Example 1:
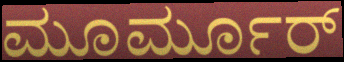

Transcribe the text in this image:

ಮೂರ್ಮೂರ್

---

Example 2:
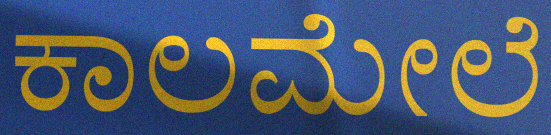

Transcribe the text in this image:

ಕಾಲಮೇಲೆ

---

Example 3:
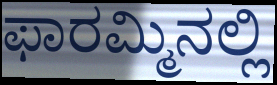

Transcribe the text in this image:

ಫಾರಮ್ಮಿನಲ್ಲಿ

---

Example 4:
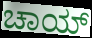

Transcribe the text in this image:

ಚಾಯ್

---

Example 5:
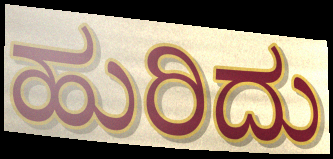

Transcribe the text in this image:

ಹುರಿದು